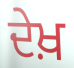
ਦੇਖ਼